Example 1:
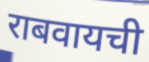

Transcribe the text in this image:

राबवायची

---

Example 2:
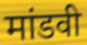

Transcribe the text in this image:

मांडवी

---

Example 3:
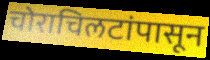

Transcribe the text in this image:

चोराचिलटांपासून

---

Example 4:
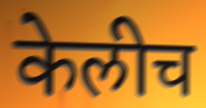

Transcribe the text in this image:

केलीच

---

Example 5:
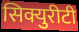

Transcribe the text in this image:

सिक्युरीटी